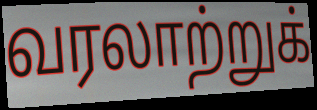
வரலாற்றுக்